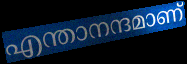
എന്താനന്ദമാണ്